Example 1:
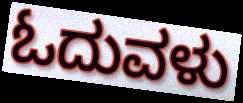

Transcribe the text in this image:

ಓದುವಳು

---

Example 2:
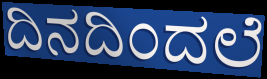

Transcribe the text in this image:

ದಿನದಿಂದಲೆ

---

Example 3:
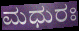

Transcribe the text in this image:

ಮಧುರಃ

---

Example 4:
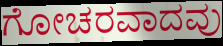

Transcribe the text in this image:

ಗೋಚರವಾದವು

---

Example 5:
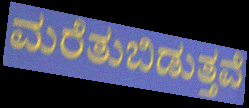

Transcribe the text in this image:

ಮರೆತುಬಿಡುತ್ತವೆ